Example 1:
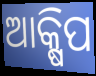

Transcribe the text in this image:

ଆକ୍ଷିପ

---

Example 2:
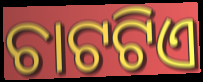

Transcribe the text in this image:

ଚାଟଟିଏ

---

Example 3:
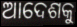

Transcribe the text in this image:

ଆଦେଶକୁ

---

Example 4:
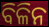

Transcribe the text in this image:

ବିଳିନ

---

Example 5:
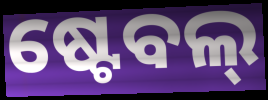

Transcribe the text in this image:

ଷ୍ଟେବଲ୍